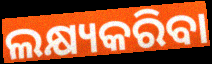
ଲକ୍ଷ୍ୟକରିବା